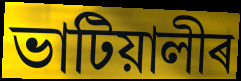
ভাটিয়ালীৰ